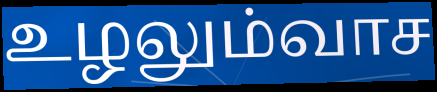
உழலும்வாச